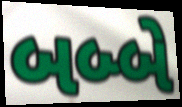
બબ્બે